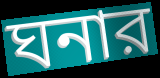
ঘনার